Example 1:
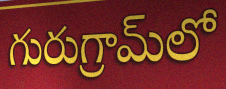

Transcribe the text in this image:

గురుగ్రామ్‌లో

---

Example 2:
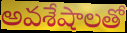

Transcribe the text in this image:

అవశేషాలతో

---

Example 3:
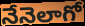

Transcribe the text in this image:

నేనెలాగో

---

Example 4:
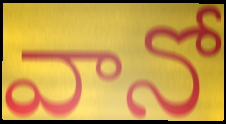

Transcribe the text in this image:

వానో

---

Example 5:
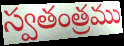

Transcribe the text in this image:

స్వతంత్రము